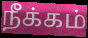
நீக்கம்